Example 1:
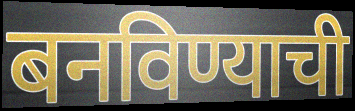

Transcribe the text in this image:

बनविण्याची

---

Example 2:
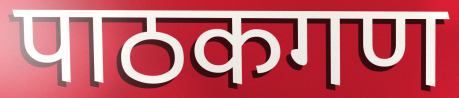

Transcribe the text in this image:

पाठकगण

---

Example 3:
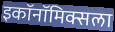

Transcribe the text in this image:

इकॉनॉमिक्सला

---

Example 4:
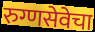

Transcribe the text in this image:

रुग्णसेवेचा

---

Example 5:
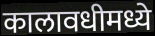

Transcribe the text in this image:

कालावधीमध्ये